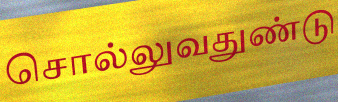
சொல்லுவதுண்டு